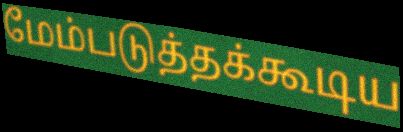
மேம்படுத்தக்கூடிய